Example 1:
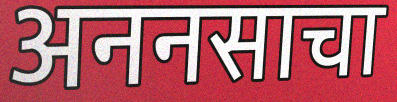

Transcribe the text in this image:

अननसाचा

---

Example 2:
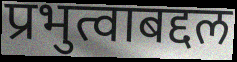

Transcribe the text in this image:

प्रभुत्वाबद्दल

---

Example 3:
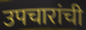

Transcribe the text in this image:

उपचारांची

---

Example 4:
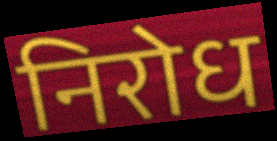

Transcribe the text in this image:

निरोध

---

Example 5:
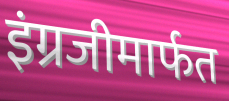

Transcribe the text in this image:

इंग्रजीमार्फत